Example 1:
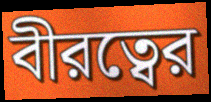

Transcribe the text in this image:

বীরত্বের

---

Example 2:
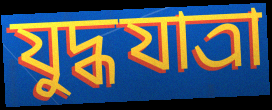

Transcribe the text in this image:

যুদ্ধযাত্রা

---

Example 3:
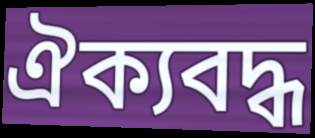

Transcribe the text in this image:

ঐক্যবদ্ধ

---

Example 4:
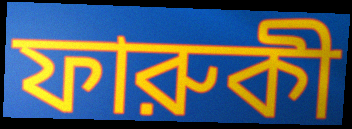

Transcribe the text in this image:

ফারুকী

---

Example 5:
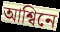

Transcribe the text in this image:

আশ্বিনে